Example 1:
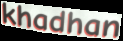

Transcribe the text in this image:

khadhan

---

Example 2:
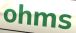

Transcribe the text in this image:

ohms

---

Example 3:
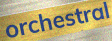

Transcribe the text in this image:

orchestral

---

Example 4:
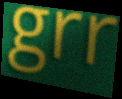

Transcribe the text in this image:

grr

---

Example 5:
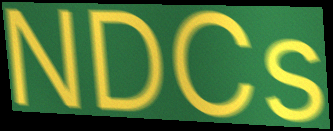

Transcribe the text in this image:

NDCs